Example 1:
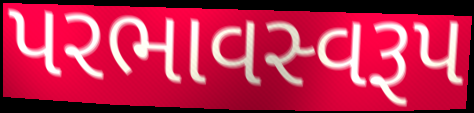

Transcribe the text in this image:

પરભાવસ્વરૂપ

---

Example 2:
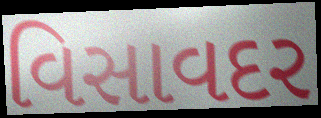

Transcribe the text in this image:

વિસાવદર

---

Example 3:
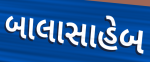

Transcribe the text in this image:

બાલાસાહેબ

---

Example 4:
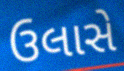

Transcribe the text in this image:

ઉલાસે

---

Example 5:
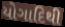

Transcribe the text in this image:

યોગાદિથી